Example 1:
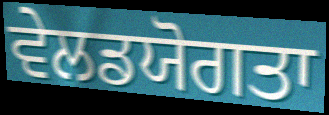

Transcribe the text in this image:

ਵੇਲਡਯੋਗਤਾ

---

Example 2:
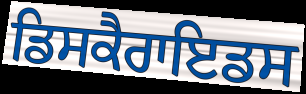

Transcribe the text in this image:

ਡਿਸਕੈਰਾਇਡਸ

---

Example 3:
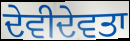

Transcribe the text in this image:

ਦੇਵੀਦੇਵਤਾ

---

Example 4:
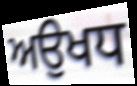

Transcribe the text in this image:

ਅਉਖਧ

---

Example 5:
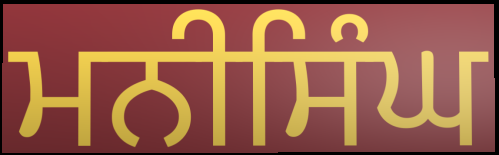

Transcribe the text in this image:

ਮਨੀਸਿੰਘ